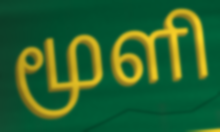
மூளி